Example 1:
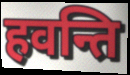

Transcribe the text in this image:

हवन्ति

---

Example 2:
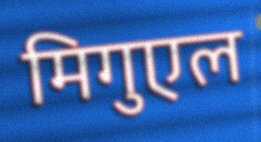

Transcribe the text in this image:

मिगुएल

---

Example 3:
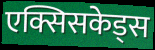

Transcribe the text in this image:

एक्सिसकेड्स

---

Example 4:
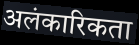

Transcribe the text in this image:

अलंकारिकता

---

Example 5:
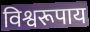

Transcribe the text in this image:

विश्वरूपाय